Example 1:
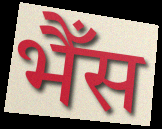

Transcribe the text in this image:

भैँस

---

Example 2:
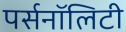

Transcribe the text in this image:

पर्सनॉलिटी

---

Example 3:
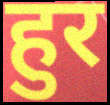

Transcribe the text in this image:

हुर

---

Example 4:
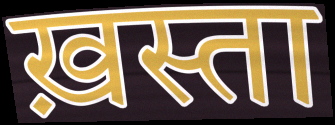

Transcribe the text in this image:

ख़स्ता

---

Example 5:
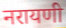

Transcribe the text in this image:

नरायणी